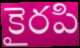
కైరపి